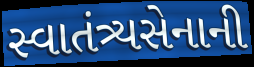
સ્વાતંત્ર્યસેનાની